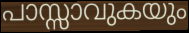
പാസ്സാവുകയും